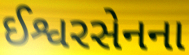
ઈશ્વરસેનના